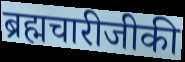
ब्रह्मचारीजीकी